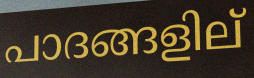
പാദങ്ങളില്